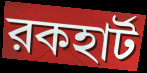
রকহার্ট